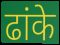
ढांके